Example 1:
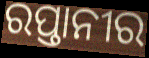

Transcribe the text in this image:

ରପ୍ତାନୀର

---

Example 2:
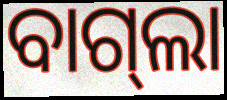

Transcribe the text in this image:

ବାଗ୍‍ଲା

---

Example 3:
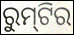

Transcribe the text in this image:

ରୁମ୍‌ଟିର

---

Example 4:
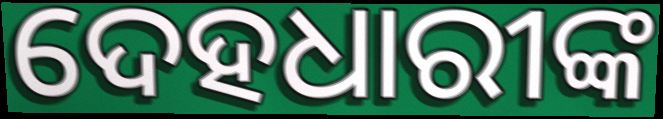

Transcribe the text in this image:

ଦେହଧାରୀଙ୍କ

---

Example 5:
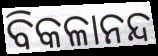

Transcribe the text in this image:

ବିକଳାନନ୍ଦ